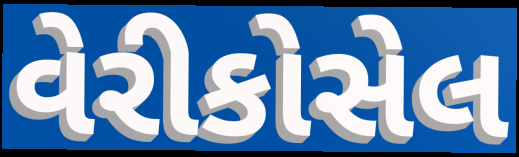
વેરીકોસેલ